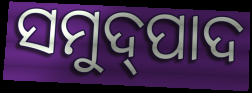
ସମୁଦ୍‌ପାଦ